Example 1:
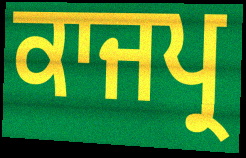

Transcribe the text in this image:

ਕਾਜਪ੍ਰ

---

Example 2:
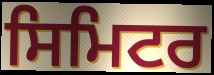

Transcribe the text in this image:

ਸਿਮਿਟਰ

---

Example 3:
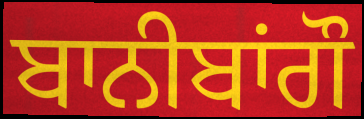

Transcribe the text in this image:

ਬਾਨੀਬਾਂਗੌ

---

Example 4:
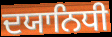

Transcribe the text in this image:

ਦਯਾਨਿਧੀ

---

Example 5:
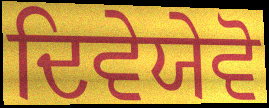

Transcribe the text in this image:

ਦਿਵੇਯੇਵੋ